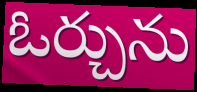
ఓర్చును